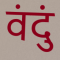
वंदुं